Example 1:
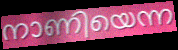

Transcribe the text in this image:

നാണിയെന്ന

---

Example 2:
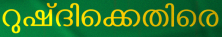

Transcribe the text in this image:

റുഷ്ദിക്കെതിരെ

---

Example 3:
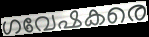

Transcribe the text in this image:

ഗവേഷകരെ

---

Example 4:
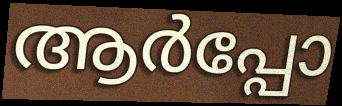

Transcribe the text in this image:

ആർപ്പോ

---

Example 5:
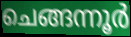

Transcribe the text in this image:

ചെങ്ങന്നൂർ